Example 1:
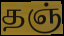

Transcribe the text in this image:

தஞ்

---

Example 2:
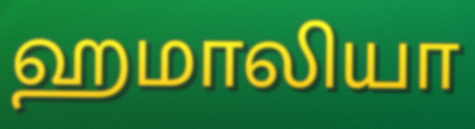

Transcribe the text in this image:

ஹமாலியா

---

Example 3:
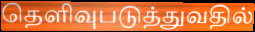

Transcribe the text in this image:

தெளிவுபடுத்துவதில்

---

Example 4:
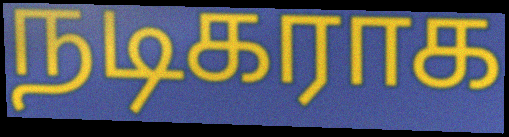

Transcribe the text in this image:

நடிகராக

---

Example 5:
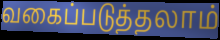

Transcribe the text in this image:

வகைப்படுத்தலாம்